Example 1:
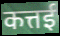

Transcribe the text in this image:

कत्तई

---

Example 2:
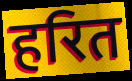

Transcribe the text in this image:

हरित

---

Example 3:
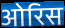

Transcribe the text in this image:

ओरिस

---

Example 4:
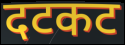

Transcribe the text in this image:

दटकट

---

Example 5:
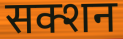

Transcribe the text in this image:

सक्शन